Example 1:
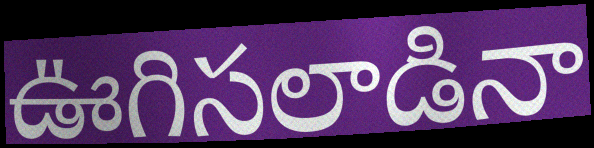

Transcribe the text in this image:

ఊగిసలాడినా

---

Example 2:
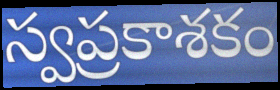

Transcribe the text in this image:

స్వప్రకాశకం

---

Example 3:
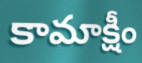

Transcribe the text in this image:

కామాక్షీం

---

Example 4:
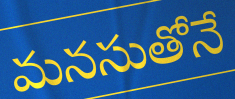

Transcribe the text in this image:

మనసుతోనే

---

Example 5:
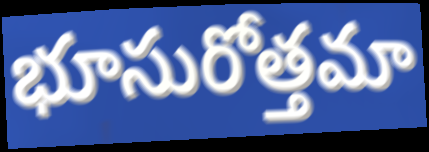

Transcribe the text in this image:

భూసురోత్తమా